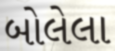
બોલેલા